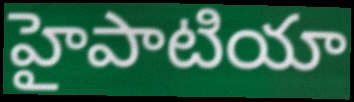
హైపాటియా